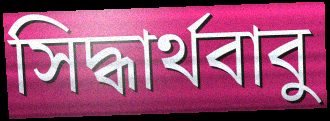
সিদ্ধার্থবাবু